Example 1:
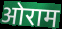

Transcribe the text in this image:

ओराम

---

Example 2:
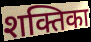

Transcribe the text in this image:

शक्तिका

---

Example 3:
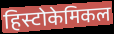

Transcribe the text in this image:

हिस्टोकेमिकल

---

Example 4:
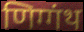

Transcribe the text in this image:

णिग्गंथ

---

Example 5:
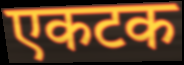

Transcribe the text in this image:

एकटक